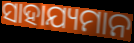
ସାହାଯ୍ୟମାନ